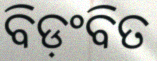
ବିଡ଼ଂବିତ